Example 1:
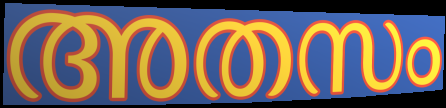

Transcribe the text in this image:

അതസം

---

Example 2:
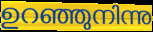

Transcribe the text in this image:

ഉറഞ്ഞുനിന്നു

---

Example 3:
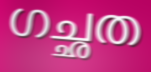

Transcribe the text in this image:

ഗച്ഛത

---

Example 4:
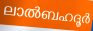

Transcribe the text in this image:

ലാൽബഹദൂർ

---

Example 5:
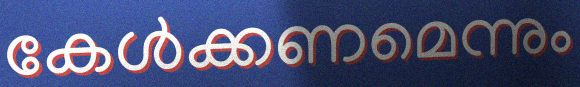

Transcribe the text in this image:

കേൾക്കണമെന്നും